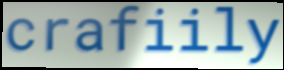
crafiily